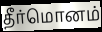
தீர்மொனம்